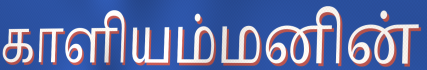
காளியம்மனின்